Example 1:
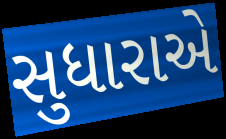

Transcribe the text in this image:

સુધારાએ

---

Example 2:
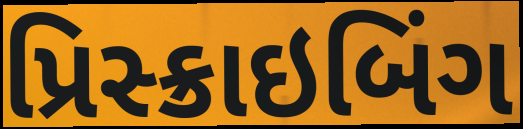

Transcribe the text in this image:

પ્રિસ્ક્રાઇબિંગ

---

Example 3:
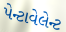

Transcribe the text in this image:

પેન્ટાવેલેન્ટ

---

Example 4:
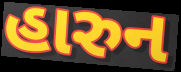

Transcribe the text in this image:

હારુન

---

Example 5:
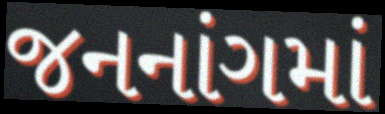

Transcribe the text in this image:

જનનાંગમાં